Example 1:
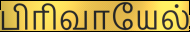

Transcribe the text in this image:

பிரிவாயேல்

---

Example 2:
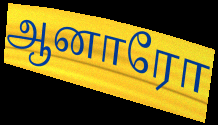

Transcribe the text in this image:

ஆனாரோ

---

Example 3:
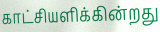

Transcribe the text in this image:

காட்சியளிக்கின்றது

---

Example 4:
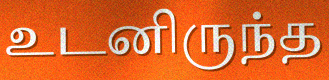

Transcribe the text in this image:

உடனிருந்த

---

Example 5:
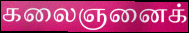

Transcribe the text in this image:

கலைஞனைக்